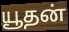
யூதன்